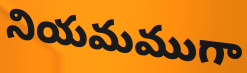
నియమముగా